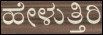
ಹೇಳುತ್ತಿರಿ